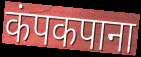
कंपकपाना